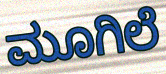
ಮೂಗಿಲೆ